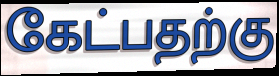
கேட்பதற்கு